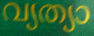
വ്യത്യാ